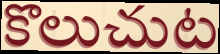
కొలుచుట